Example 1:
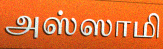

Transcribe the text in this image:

அஸ்ஸாமி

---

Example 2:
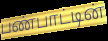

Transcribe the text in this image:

பண்பாட்டின்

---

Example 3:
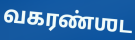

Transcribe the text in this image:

வகரண்ஶட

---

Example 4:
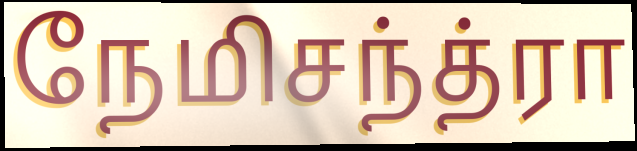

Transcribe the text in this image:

நேமிசந்த்ரா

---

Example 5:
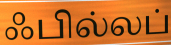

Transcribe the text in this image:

ஃபில்லப்